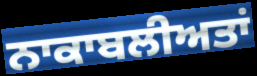
ਨਾਕਾਬਲੀਅਤਾਂ